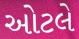
ઓટલે